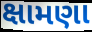
ક્ષામણા